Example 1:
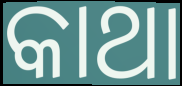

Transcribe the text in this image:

କାଥା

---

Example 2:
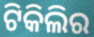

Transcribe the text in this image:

ଟିକିଲିର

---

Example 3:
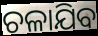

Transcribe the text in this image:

ଚଳାଯିବ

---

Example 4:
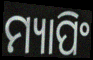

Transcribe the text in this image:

ମ୍ୟାପିଂ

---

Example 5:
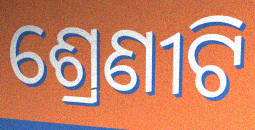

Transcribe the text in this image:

ଶ୍ରେଣୀଟି